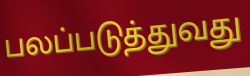
பலப்படுத்துவது